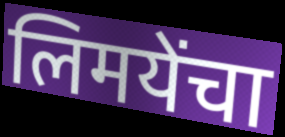
लिमयेंचा